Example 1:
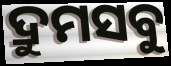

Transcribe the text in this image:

ଦ୍ରୁମସବୁ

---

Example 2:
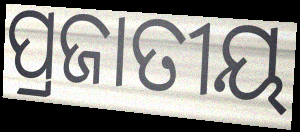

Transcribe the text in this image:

ପ୍ରଜାତୀୟ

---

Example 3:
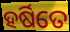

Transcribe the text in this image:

ହର୍ଷିତେ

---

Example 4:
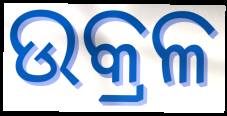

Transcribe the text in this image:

ଉକ୍ରଳ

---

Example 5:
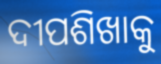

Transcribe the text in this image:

ଦୀପଶିଖାକୁ